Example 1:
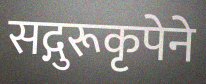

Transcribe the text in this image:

सद्गुरूकृपेने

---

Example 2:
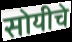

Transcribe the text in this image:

सोयीचे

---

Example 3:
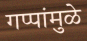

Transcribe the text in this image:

गप्पांमुळे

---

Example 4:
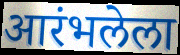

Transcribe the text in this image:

आरंभलेला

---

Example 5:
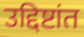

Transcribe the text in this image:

उद्दिष्टांत